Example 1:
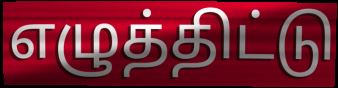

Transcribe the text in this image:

எழுத்திட்டு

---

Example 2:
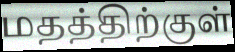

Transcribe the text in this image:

மதத்திற்குள்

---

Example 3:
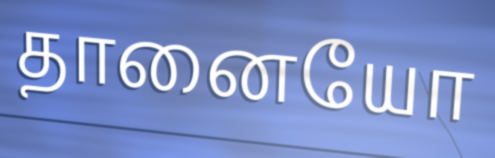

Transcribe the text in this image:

தானையோ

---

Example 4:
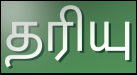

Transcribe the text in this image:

தரியு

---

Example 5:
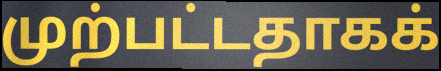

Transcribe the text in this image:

முற்பட்டதாகக்